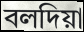
বলদিয়া